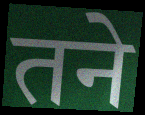
तने